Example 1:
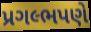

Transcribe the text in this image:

પ્રગલ્ભપણે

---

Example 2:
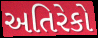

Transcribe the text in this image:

અતિરેકો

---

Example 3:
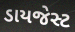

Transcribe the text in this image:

ડાયજેસ્ટ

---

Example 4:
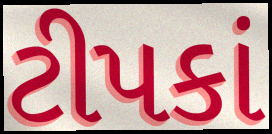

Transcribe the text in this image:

ટીપકાં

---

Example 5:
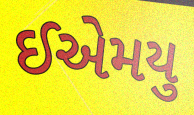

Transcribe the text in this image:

ઈએમયુ